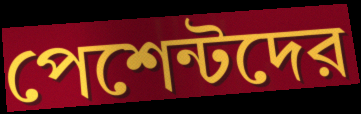
পেশেন্টদের